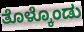
ತೊಳ್ಕೊಂಡು